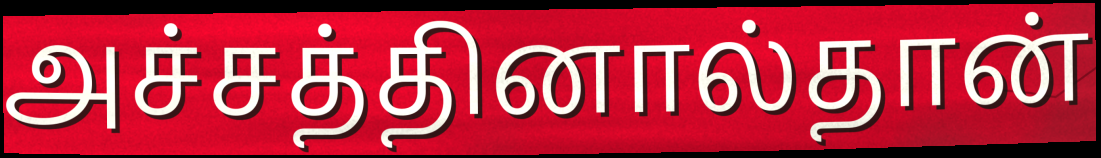
அச்சத்தினால்தான்